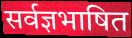
सर्वज्ञभाषित